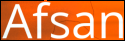
Afsan